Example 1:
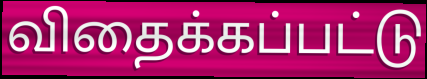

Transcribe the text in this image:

விதைக்கப்பட்டு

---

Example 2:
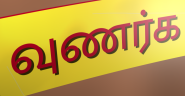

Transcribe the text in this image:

வுணர்க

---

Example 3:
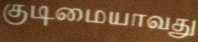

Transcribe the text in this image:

குடிமையாவது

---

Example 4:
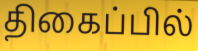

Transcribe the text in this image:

திகைப்பில்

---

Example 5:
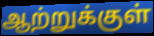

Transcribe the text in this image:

ஆற்றுக்குள்